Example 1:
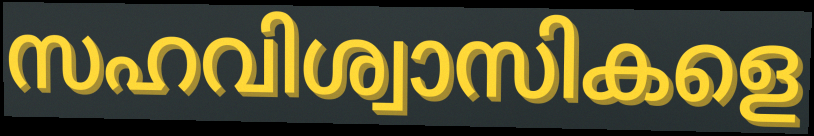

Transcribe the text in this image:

സഹവിശ്വാസികളെ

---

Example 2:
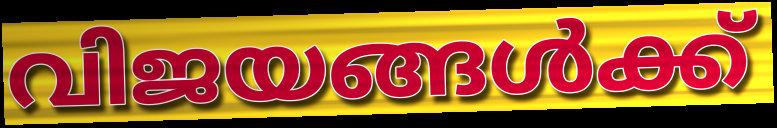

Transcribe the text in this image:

വിജയങ്ങൾക്ക്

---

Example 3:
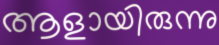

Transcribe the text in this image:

ആളായിരുന്നു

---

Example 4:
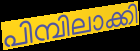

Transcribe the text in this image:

പിമ്പിലാക്കി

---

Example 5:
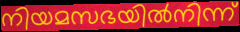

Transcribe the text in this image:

നിയമസഭയിൽനിന്ന്